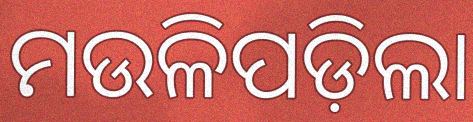
ମଉଳିପଡ଼ିଲା